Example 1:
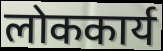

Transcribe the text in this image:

लोककार्य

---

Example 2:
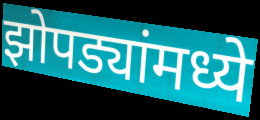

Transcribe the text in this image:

झोपड्यांमध्ये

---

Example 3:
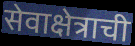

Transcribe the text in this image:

सेवाक्षेत्राची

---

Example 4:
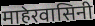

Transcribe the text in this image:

माहेरवासिनी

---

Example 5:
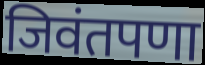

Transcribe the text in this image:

जिवंतपणा